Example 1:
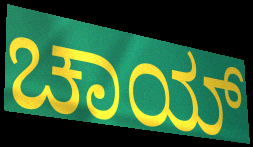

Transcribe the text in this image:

ಚಾಯ್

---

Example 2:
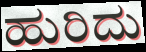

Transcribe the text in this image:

ಹುರಿದು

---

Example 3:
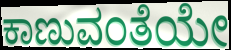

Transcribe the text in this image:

ಕಾಣುವಂತೆಯೇ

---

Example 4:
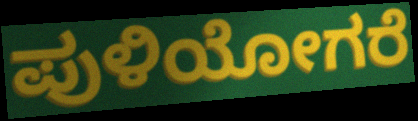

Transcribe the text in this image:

ಪುಳಿಯೋಗರೆ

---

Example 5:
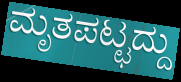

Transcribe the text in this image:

ಮೃತಪಟ್ಟದ್ದು